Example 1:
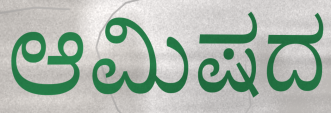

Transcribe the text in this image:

ಆಮಿಷದ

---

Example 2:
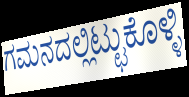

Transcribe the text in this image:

ಗಮನದಲ್ಲಿಟ್ಟುಕೊಳ್ಳಿ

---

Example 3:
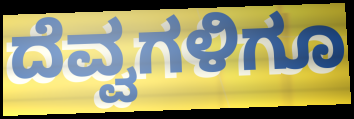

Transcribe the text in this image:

ದೆವ್ವಗಳಿಗೂ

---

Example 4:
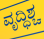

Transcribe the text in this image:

ವೃದ್ಧಿಶ್ಚ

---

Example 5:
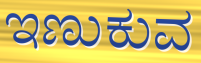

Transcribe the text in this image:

ಇಣುಕುವ